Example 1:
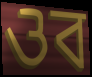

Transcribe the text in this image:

ওব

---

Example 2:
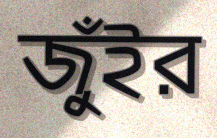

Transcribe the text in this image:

জুঁইর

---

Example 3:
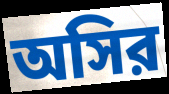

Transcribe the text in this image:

অসির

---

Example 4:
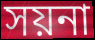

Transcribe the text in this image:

সয়না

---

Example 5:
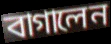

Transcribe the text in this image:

বাগালেন